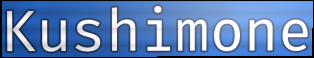
Kushimone